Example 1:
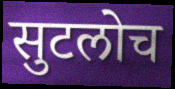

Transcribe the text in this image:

सुटलोच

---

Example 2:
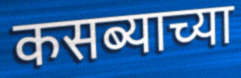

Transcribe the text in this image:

कसब्याच्या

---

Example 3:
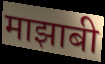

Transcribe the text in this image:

माझाबी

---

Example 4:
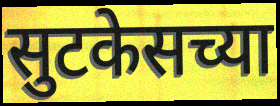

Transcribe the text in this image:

सुटकेसच्या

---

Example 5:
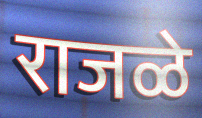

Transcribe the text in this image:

राजळे